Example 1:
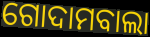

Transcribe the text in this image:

ଗୋଦାମବାଲା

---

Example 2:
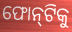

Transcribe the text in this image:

ଫୋନ୍‌ଟିକୁ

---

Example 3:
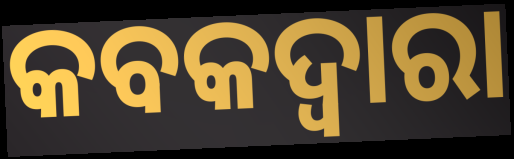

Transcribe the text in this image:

କବକଦ୍ୱାରା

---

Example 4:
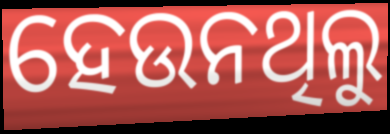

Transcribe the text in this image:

ହେଉନଥିଲୁ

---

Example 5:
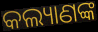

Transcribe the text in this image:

କଲ୍ୟାଣଙ୍କ